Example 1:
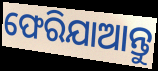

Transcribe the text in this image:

ଫେରିଯାଆନ୍ତୁ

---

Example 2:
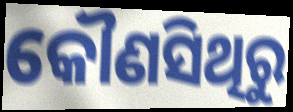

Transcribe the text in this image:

କୌଣସିଥିରୁ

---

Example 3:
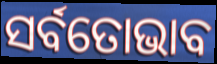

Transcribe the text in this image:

ସର୍ବତୋଭାବ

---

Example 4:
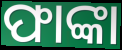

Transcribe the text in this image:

ଫାଙ୍କା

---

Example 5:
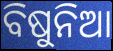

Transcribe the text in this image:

ବିଷୁନିଆ